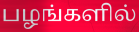
பழங்களில்